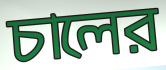
চালের